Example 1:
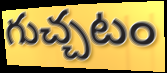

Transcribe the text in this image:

గుచ్చటం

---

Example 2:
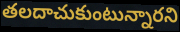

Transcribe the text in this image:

తలదాచుకుంటున్నారని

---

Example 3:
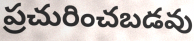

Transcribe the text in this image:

ప్రచురించబడవు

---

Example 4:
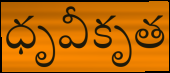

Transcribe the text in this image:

ధృవీకృత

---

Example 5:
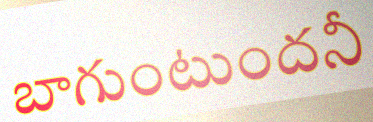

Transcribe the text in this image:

బాగుంటుందనీ